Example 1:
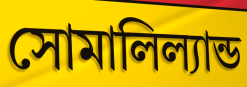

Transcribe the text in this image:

সোমালিল্যান্ড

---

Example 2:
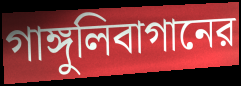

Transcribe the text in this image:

গাঙ্গুলিবাগানের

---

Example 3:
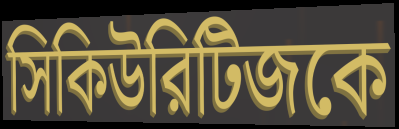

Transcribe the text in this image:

সিকিউরিটিজকে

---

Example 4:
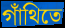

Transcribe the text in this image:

গাঁথিতে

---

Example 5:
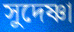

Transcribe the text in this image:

সুদেষ্ণা